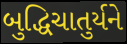
બુદ્ધિચાતુર્યને